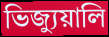
ভিজ্যুয়ালি